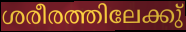
ശരീരത്തിലേക്കു്